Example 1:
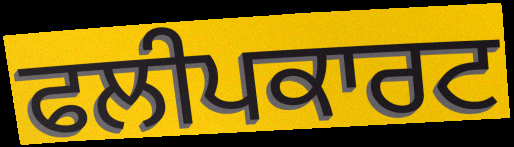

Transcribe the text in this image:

ਫਲੀਪਕਾਰਟ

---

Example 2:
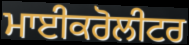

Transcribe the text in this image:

ਮਾਈਕਰੋਲੀਟਰ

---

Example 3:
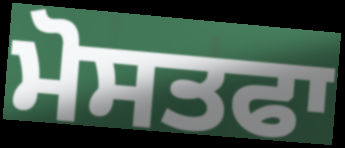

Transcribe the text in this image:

ਮੋਸਤਫਾ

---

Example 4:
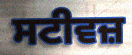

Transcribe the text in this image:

ਸਟੀਵਜ਼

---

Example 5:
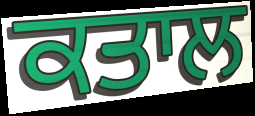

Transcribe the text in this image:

ਕਤਾਲ